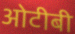
ओटीबी